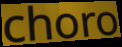
choro